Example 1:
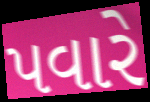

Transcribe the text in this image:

પવારે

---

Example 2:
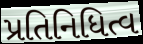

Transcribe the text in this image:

પ્રતિનિધિત્વ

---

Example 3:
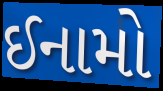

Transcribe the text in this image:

ઈનામો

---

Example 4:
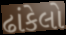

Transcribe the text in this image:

ઢાંકેલો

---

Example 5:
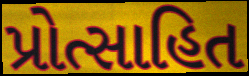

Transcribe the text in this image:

પ્રોત્સાહિત